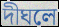
দীঘলে